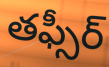
తఫ్సీర్